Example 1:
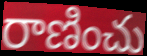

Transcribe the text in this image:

రాణించు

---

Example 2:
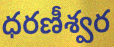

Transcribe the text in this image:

ధరణీశ్వర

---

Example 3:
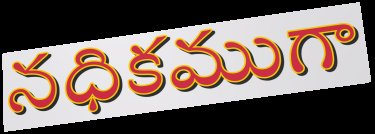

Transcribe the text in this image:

నధికముగా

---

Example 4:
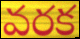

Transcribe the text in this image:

వరక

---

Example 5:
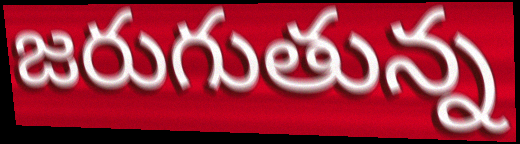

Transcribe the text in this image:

జరుగుతున్న